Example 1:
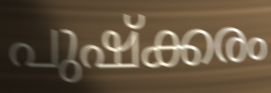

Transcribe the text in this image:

പുഷ്ക്കരം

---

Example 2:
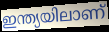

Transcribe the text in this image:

ഇന്ത്യയിലാണ്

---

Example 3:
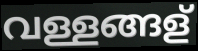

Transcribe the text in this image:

വള്ളങ്ങള്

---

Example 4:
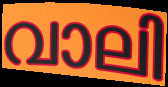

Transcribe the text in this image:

വാലി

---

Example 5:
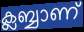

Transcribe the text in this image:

ക്ലബ്ബാണ്